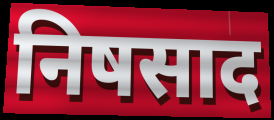
निषसाद